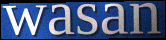
wasan